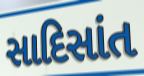
સાદિસાંત